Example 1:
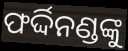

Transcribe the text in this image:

ଫର୍ଦ୍ଦିନଣ୍ଡଙ୍କୁ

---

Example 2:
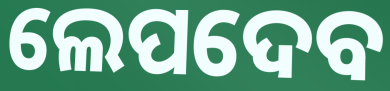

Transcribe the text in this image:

ଲେପଦେବ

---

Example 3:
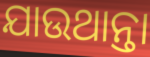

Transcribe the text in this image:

ଯାଉଥାନ୍ତା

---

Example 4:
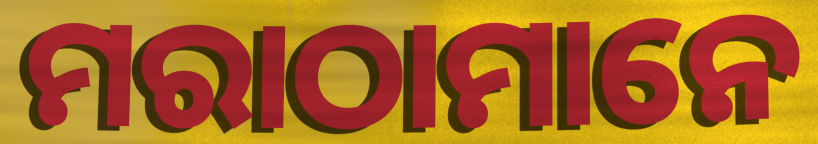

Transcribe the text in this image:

ମରାଠାମାନେ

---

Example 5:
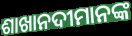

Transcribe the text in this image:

ଶାଖାନଦୀମାନଙ୍କ